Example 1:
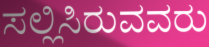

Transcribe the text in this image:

ಸಲ್ಲಿಸಿರುವವರು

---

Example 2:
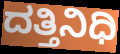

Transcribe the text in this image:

ದತ್ತಿನಿಧಿ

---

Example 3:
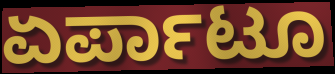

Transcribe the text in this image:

ಏರ್ಪಾಟೂ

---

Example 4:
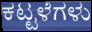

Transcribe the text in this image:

ಕಟ್ಟಳೆಗಳು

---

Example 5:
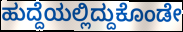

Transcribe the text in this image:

ಹುದ್ದೆಯಲ್ಲಿದ್ದುಕೊಂಡೇ